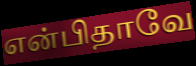
என்பிதாவே